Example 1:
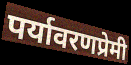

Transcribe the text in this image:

पर्यावरणप्रेमी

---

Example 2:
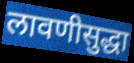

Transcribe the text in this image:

लावणीसुद्धा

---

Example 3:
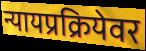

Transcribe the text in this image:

न्यायप्रक्रियेवर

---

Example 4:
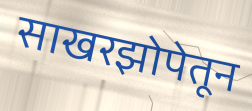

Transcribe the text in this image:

साखरझोपेतून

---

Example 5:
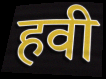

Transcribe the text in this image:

हवी